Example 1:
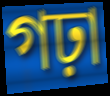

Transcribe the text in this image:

গঢ়া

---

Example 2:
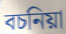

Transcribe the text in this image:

বচনিয়া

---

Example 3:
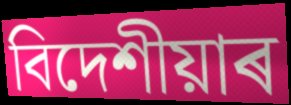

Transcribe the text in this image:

বিদেশীয়াৰ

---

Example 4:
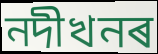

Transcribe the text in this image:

নদীখনৰ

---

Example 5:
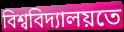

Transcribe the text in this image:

বিশ্ববিদ্যালয়তে